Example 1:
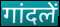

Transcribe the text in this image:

गांदलें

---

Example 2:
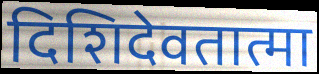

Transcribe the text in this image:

दिशिदेवतात्मा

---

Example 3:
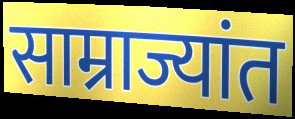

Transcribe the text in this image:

साम्राज्यांत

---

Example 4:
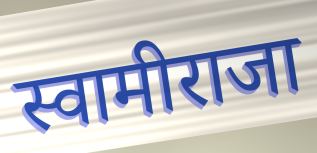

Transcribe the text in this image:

स्वामीराजा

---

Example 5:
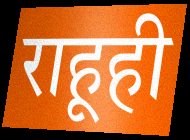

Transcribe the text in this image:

राहूही